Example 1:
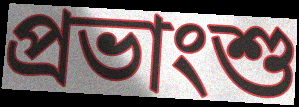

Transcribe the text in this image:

প্রভাংশু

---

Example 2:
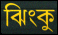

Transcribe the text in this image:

ঝিংকু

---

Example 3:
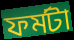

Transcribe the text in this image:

ফর্মটা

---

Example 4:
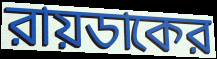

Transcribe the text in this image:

রায়ডাকের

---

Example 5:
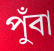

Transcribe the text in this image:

পুঁবা